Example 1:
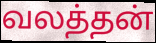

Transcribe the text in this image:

வலத்தன்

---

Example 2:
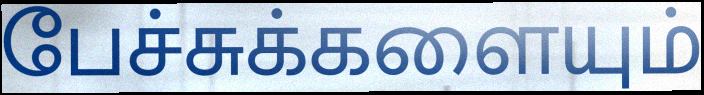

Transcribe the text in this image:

பேச்சுக்களையும்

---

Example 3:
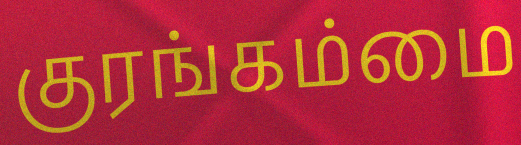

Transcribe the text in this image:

குரங்கம்மை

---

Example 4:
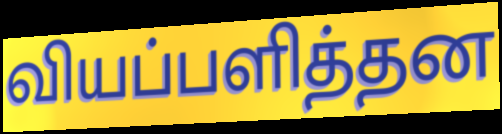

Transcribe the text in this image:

வியப்பளித்தன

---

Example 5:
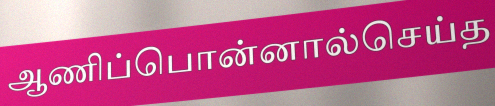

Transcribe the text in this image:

ஆணிப்பொன்னால்செய்த